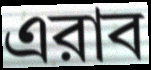
এরাব